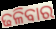
ଢଳିବାର